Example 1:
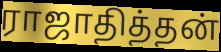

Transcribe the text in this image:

ராஜாதித்தன்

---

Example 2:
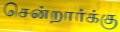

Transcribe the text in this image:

சென்றார்க்கு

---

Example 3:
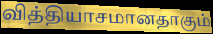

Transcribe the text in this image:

வித்தியாசமானதாகும்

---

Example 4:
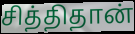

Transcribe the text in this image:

சித்திதான்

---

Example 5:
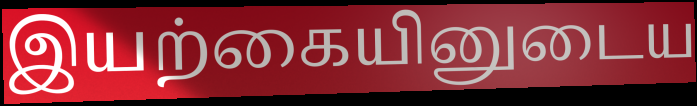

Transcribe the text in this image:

இயற்கையினுடைய